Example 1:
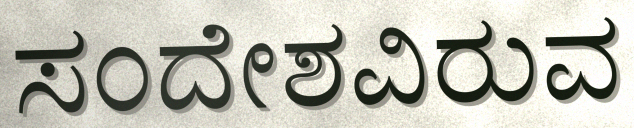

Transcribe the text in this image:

ಸಂದೇಶವಿರುವ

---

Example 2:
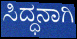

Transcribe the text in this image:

ಸಿದ್ಧನಾಗಿ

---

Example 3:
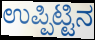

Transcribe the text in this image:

ಉಪ್ಪಿಟ್ಟಿನ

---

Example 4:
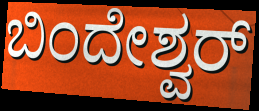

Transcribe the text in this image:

ಬಿಂದೇಶ್ವರ್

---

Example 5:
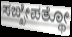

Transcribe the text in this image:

ಸಙ್ಖೇಪತ್ಥೋ